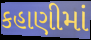
કહાણીમાં